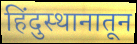
हिंदुस्थानातून